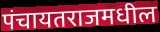
पंचायतराजमधील